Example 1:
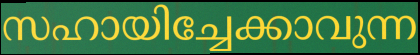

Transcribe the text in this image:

സഹായിച്ചേക്കാവുന്ന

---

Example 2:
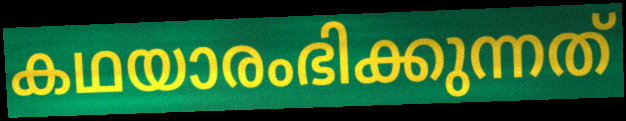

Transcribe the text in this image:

കഥയാരംഭിക്കുന്നത്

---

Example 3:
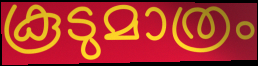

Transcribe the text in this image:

കൂടുമാത്രം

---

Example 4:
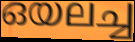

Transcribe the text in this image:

ഒയലച്ച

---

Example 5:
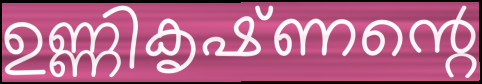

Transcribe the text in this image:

ഉണ്ണികൃഷ്‌ണന്റെ